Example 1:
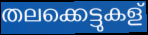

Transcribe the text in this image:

തലക്കെട്ടുകള്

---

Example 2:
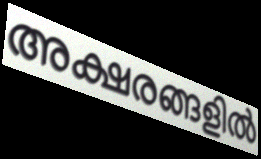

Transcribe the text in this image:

അക്ഷരങ്ങളിൽ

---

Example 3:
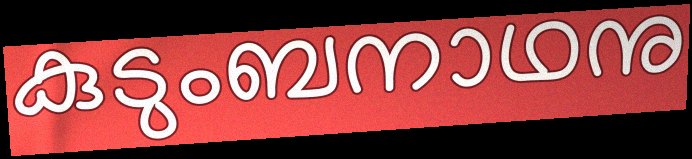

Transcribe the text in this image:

കുടുംബനാഥനു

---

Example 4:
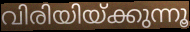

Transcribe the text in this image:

വിരിയിയ്ക്കുന്നൂ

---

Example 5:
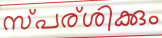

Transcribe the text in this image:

സ്പര്ശിക്കും